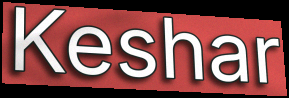
Keshar